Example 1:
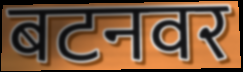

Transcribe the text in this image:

बटनवर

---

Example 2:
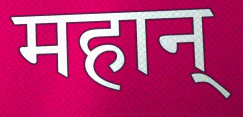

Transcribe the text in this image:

महान्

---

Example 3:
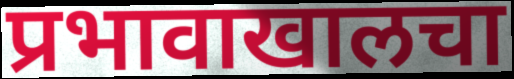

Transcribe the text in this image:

प्रभावाखालचा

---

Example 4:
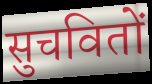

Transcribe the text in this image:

सुचवितों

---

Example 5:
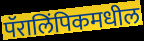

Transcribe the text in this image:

पॅरालिंपिकमधील